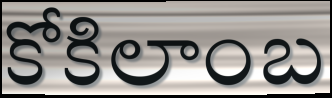
కోకిలాంబ